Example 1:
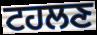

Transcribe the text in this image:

ਟਹਲਣ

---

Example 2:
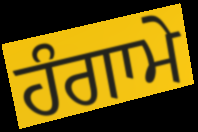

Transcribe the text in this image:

ਹੰਗਾਮੇ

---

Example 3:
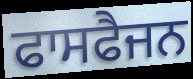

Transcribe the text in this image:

ਫਾਸਫੈਜਨ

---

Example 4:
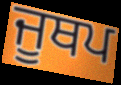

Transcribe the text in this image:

ਜੂਥਪ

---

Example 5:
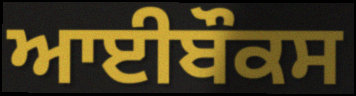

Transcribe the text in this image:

ਆਈਬੌਕਸ